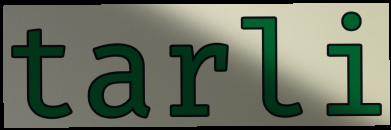
tarli